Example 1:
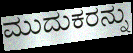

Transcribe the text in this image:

ಮುದುಕರನ್ನು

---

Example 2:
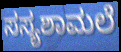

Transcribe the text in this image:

ಸಸ್ಯಶಾಮಲೆ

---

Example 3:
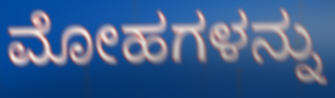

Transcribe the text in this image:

ಮೋಹಗಳನ್ನು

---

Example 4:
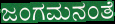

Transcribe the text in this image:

ಜಂಗಮನಂತೆ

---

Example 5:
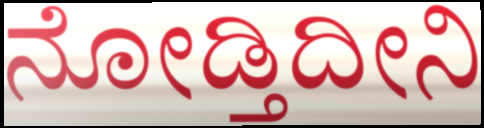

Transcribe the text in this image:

ನೋಡ್ತಿದೀನಿ